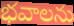
భవాలను